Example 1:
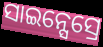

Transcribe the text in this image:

ସାଇନ୍ସେସ୍ରେ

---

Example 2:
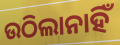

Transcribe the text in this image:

ଉଠିଲାନାହିଁ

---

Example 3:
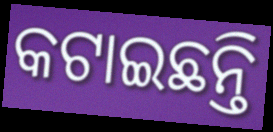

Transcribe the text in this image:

କଟାଇଛନ୍ତି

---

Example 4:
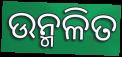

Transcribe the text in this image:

ଉନ୍ମଳିତ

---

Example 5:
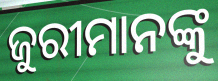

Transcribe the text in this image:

ଜୁରୀମାନଙ୍କୁ